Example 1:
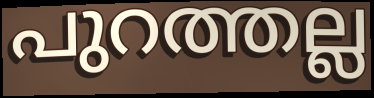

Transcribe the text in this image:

പുറത്തല്ല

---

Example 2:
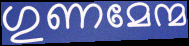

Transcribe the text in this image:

ഗുണമേന്മ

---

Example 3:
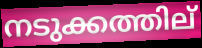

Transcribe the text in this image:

നടുക്കത്തില്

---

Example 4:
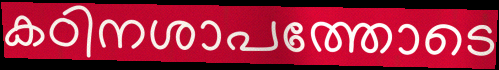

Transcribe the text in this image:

കഠിനശാപത്തോടെ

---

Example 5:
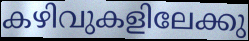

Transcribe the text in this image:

കഴിവുകളിലേക്കു